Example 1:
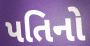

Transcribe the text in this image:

પતિનો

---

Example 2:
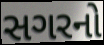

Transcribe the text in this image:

સગરનો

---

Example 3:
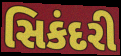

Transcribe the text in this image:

સિકંદરી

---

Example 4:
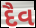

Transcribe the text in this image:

દૈવ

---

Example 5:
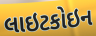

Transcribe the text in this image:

લાઇટકોઇન